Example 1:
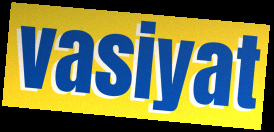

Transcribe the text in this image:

vasiyat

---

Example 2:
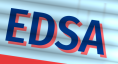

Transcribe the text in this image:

EDSA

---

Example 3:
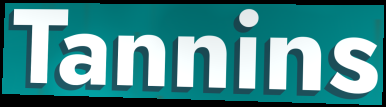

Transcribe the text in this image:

Tannins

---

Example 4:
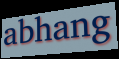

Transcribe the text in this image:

abhang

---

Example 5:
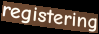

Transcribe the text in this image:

registering